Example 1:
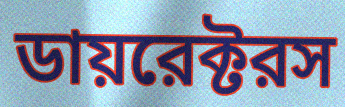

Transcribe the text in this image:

ডায়রেক্টরস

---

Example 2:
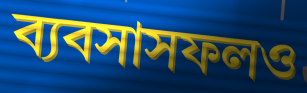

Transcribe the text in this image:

ব্যবসাসফলও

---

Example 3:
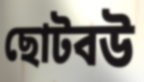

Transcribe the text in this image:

ছোটবউ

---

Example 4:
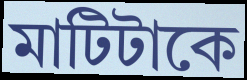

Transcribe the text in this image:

মাটিটাকে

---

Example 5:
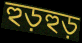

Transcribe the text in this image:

হুড়হুড়